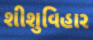
શીશુવિહાર